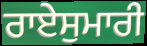
ਰਾਏਸੁਮਾਰੀ